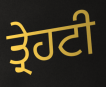
ਤ੍ਰੇਹਟੀ